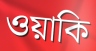
ওয়াকি